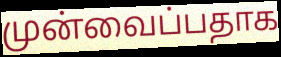
முன்வைப்பதாக